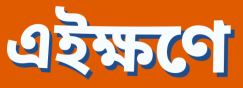
এইক্ষণে